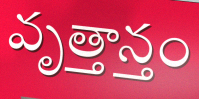
వృత్తాన్తం